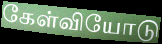
கேள்வியோடு